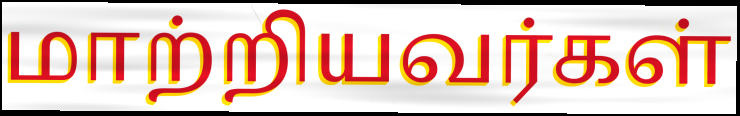
மாற்றியவர்கள்